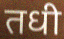
तधी